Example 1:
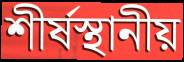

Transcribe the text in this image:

শীর্ষস্থানীয়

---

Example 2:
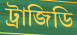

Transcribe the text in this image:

ট্রাজিডি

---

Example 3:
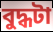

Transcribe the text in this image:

বুদ্ধটা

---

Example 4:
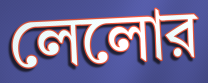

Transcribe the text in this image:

লেলোর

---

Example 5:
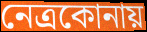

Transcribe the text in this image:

নেত্রকোনায়